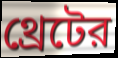
থ্রেটের